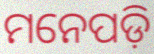
ମନେପଡ଼ି